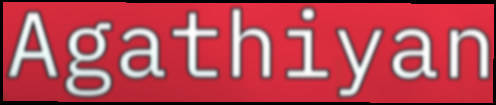
Agathiyan